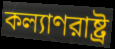
কল্যাণরাষ্ট্র